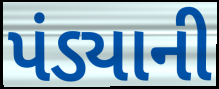
પંડ્યાની